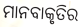
ମାନବାକୃତିର